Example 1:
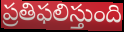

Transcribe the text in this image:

ప్రతిఫలిస్తుంది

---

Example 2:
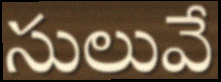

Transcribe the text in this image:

సులువే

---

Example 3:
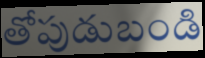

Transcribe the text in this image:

తోపుడుబండి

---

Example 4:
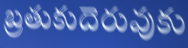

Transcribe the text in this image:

బ్రతుకుదెరువుకు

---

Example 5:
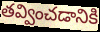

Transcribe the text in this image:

తవ్వించడానికి